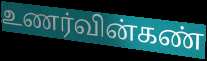
உணர்வின்கண்